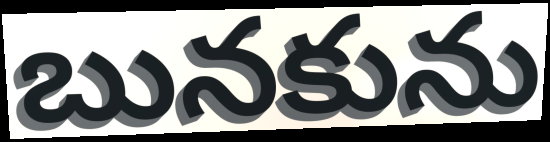
బునకును